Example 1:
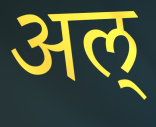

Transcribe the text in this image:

अल्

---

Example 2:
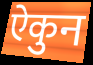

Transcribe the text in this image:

ऐकुन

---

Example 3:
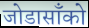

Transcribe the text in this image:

जोडासाँको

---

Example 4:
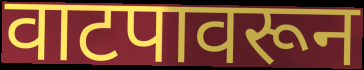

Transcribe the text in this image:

वाटपावरून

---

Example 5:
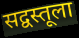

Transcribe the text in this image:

सद्वस्तूला